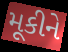
મૂકીને